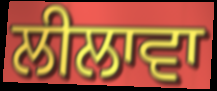
ਲੀਲਾਵਾ